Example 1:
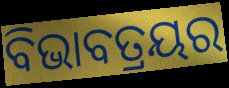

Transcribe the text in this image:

ବିଭାବତ୍ରୟର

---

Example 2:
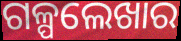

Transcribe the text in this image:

ଗଳ୍ପଲେଖାର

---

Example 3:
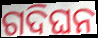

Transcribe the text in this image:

ଗଦିଘନ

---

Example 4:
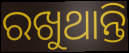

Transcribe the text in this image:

ରଖୁଥାନ୍ତି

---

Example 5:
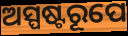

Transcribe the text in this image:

ଅସ୍ପଷ୍ଟରୂପେ